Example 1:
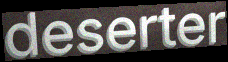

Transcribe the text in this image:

deserter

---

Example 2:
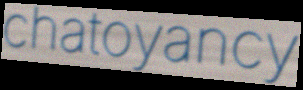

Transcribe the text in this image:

chatoyancy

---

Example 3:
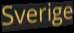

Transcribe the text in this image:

Sverige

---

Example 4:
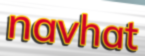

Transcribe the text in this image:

navhat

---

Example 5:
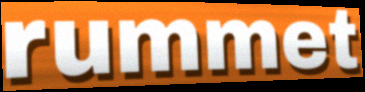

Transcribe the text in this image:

rummet